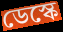
ডেস্কে